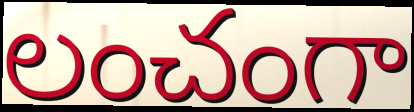
లంచంగా